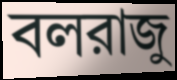
বলরাজু